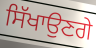
ਸਿੱਖਾਉਣਗੇ